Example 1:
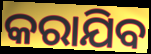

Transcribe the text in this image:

କରାଯିବ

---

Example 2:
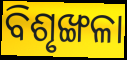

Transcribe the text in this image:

ବିଶୃଙ୍ଖଳା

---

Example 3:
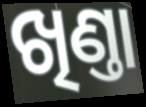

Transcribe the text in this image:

ଖିଣ୍ତା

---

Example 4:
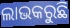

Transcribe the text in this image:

ଲାଭକରୁଛି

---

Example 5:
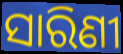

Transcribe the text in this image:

ସାରିଣୀ